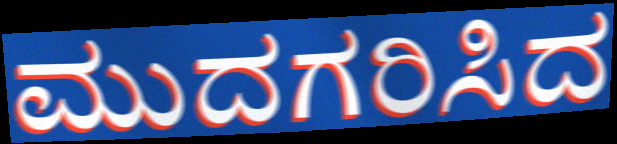
ಮುದಗರಿಸಿದ